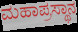
ಮಹಾಪ್ರಸ್ಥಾನ